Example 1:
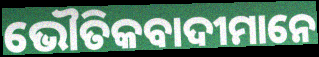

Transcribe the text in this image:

ଭୌତିକବାଦୀମାନେ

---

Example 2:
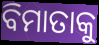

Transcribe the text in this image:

ବିମାତାକୁ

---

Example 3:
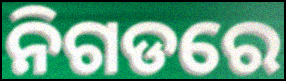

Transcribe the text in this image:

ନିଗଡରେ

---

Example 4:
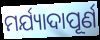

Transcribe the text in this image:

ମର୍ଯ୍ୟାଦାପୂର୍ଣ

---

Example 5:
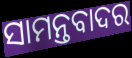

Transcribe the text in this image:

ସାମନ୍ତବାଦର